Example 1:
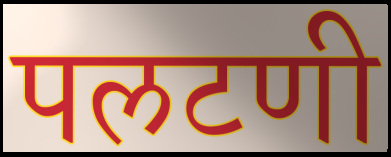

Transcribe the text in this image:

पलटणी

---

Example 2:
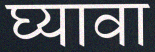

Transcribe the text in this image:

घ्यावा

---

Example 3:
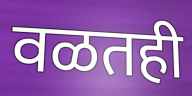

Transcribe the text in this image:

वळतही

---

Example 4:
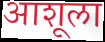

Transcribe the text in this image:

आशूला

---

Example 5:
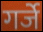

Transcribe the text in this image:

गर्जे